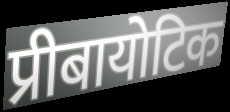
प्रीबायोटिक